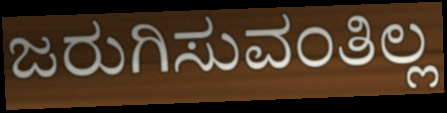
ಜರುಗಿಸುವಂತಿಲ್ಲ